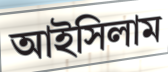
আইসিলাম